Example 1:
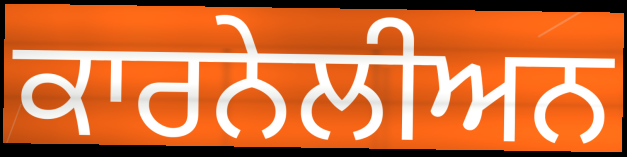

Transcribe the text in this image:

ਕਾਰਨੇਲੀਅਨ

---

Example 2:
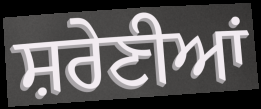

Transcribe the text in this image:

ਸ਼ਰੇਣੀਆਂ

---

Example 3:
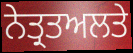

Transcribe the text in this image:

ਨੇਤ੍ਰਤਅਲਤੇ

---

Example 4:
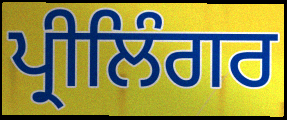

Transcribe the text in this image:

ਪ੍ਰੀਲਿੰਗਰ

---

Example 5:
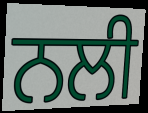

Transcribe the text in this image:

ਨਲੀ